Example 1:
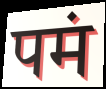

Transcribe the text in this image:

पमं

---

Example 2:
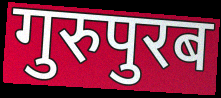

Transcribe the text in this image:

गुरुपुरब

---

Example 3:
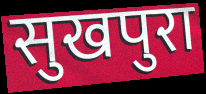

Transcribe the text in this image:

सुखपुरा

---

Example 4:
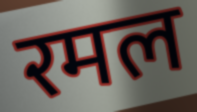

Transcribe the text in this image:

रमल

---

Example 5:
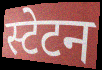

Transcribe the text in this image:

स्टेटन